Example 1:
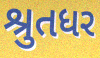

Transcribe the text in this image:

શ્રુતધર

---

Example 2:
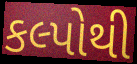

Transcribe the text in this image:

કલ્પોથી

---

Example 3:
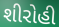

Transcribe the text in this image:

શીરોહી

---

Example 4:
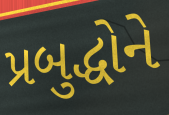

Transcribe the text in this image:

પ્રબુદ્ધોને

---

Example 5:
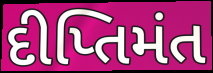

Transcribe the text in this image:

દીપ્તિમંત